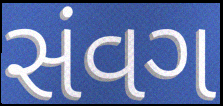
સંવગ